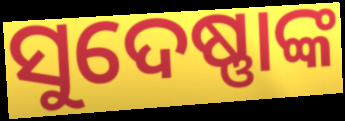
ସୁଦେଷ୍ଣାଙ୍କ